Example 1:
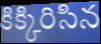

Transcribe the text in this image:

కిక్కిరిసిన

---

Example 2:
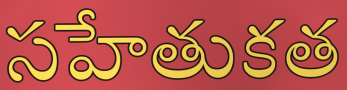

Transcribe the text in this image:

సహేతుకత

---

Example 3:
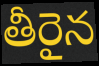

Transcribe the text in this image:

తీరైన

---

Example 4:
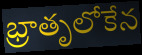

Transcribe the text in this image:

భ్రాతృలోకేన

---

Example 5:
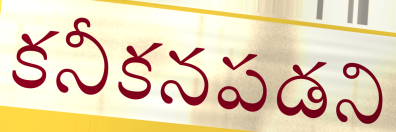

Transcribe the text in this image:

కనీకనపడని